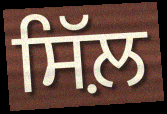
ਸਿੱਲ਼